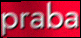
praba